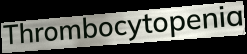
Thrombocytopenia